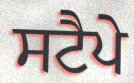
ਸਟੈਪੇ